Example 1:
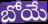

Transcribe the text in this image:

బోయే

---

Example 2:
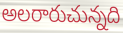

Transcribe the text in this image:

అలరారుచున్నది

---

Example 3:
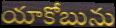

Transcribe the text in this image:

యాకోబును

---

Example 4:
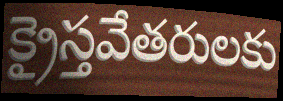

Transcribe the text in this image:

క్రైస్తవేతరులకు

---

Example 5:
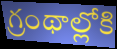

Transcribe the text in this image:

గ్రంథాల్లోకి